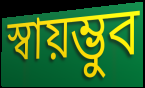
স্বায়ম্ভুব